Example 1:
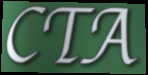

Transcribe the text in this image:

CTA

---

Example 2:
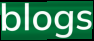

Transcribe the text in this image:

blogs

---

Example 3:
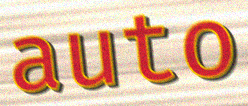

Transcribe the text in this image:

auto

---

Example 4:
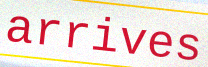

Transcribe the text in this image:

arrives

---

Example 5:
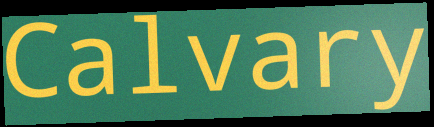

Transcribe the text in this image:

Calvary